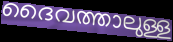
ദൈവത്താലുള്ള